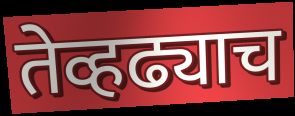
तेव्हढ्याच